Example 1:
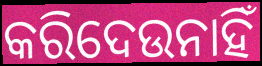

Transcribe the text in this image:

କରିଦେଉନାହିଁ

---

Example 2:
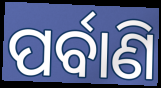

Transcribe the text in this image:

ପର୍ବାଣି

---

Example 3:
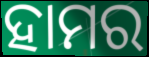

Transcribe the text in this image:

ହାମର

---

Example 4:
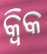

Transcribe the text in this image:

କ୍ୱିକ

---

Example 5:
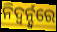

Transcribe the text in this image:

ନିଦ୍ଵର୍ନ୍ଦ୍ୱରେ